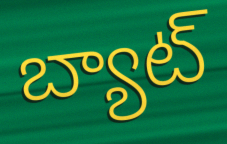
బ్యాట్